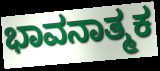
ಭಾವನಾತ್ಮಕ